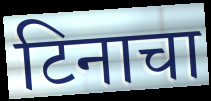
टिनाचा